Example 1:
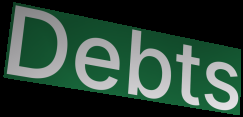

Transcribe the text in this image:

Debts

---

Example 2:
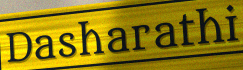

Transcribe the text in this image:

Dasharathi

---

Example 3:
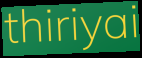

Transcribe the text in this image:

thiriyai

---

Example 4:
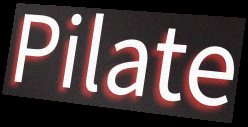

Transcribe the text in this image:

Pilate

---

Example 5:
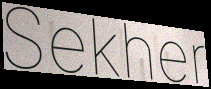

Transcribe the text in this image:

Sekher